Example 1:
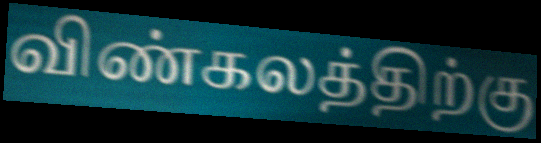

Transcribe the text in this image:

விண்கலத்திற்கு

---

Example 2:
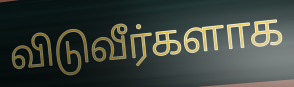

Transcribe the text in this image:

விடுவீர்களாக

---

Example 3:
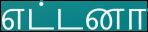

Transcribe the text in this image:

எட்டனா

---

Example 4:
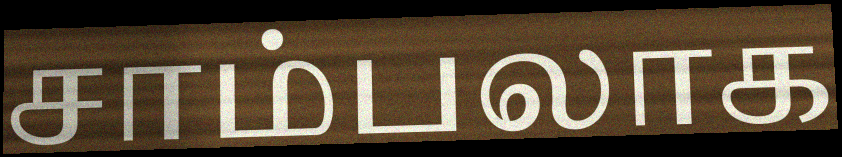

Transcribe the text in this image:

சாம்பலாக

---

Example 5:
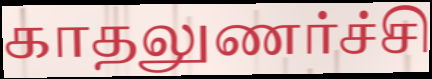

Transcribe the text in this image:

காதலுணர்ச்சி